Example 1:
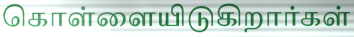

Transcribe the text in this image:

கொள்ளையிடுகிறார்கள்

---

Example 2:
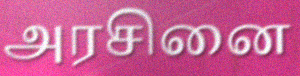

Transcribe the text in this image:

அரசினை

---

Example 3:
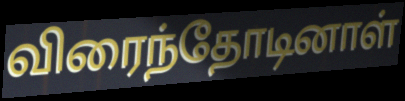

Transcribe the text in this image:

விரைந்தோடினாள்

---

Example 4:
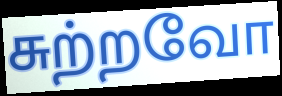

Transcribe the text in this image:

சுற்றவோ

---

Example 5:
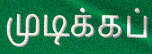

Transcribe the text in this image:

முடிக்கப்